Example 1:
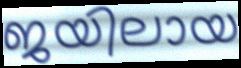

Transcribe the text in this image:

ജയിലായ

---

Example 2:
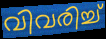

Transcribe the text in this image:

വിവരിച്ച്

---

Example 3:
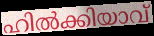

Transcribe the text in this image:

ഹിൽക്കിയാവ്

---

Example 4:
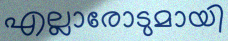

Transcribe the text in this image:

എല്ലാരോടുമായി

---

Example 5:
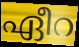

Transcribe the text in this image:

ഏീറ